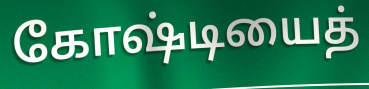
கோஷ்டியைத்